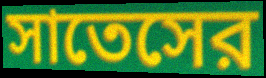
সাতেসের